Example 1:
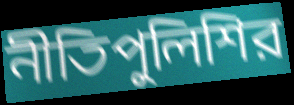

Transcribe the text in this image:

নীতিপুলিশির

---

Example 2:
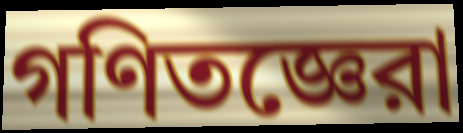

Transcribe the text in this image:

গণিতজ্ঞেরা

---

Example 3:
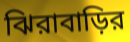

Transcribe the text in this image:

ঝিরাবাড়ির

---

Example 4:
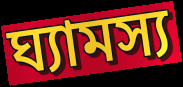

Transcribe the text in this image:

ঘ্যামস্য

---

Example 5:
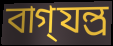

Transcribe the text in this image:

বাগ্‌যন্ত্র